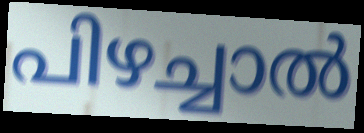
പിഴച്ചാൽ